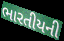
ભારતીયની